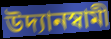
উদ্যানস্বামী